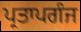
ਪ੍ਰਤਾਪਗੰਜ